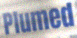
Plumed